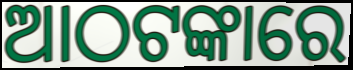
ଆଠଟଙ୍କାରେ